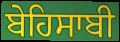
ਬੇਹਿਸਾਬੀ